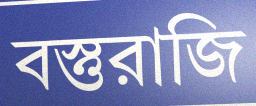
বস্তুরাজি